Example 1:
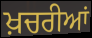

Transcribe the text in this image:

ਖ਼ਚਰੀਆਂ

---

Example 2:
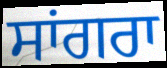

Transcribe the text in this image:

ਸਾਂਗਰਾ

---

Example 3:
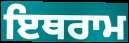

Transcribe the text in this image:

ਇਥਰਾਮ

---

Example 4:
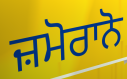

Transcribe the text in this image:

ਜ਼ਮੋਰਾਨੋ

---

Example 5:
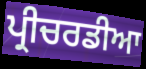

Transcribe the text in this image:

ਪ੍ਰੀਚਰਡੀਆ